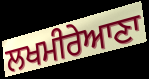
ਲਖਮੀਰੇਆਣਾ